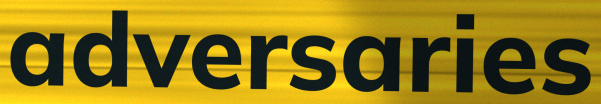
adversaries